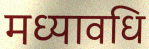
मध्‍यावधि